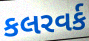
કલરવર્ક